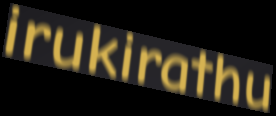
irukirathu